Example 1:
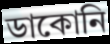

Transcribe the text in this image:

ডাকোনি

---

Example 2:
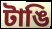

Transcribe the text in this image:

টাঙি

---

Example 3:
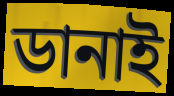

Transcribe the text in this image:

ডানাই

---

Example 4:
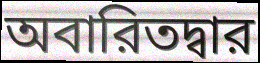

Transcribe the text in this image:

অবারিতদ্বার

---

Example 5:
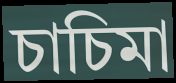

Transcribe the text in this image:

চাচিমা